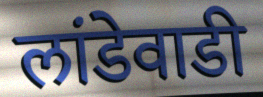
लांडेवाडी